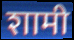
शामी